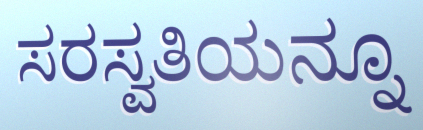
ಸರಸ್ವತಿಯನ್ನೂ